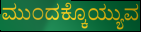
ಮುಂದಕ್ಕೊಯ್ಯುವ